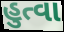
હુત્વા